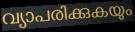
വ്യാപരിക്കുകയും